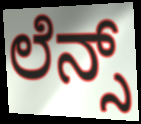
ಲೆನ್ಸ್